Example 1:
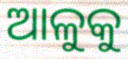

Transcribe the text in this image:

ଆଳୁକୁ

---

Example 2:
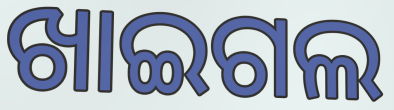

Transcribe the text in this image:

ଖାଇଗଲ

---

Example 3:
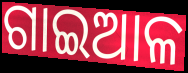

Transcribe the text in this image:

ଗାଇଆଳ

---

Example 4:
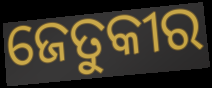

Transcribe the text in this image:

ଜେତୁକୀର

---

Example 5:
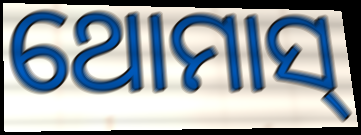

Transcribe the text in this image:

ଥୋମାସ୍